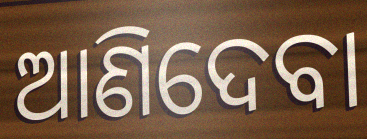
ଆଣିଦେବା